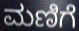
ಮಣಿಗೆ